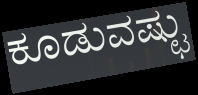
ಕೂಡುವಷ್ಟು